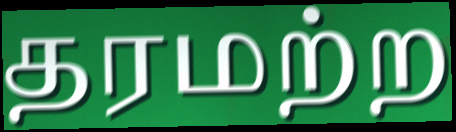
தரமற்ற